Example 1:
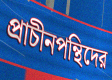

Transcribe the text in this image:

প্রাচীনপন্থিদের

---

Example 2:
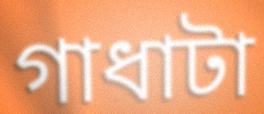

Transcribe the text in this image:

গাধাটা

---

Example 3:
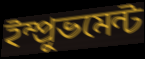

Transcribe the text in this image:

ইম্প্রুভমেন্ট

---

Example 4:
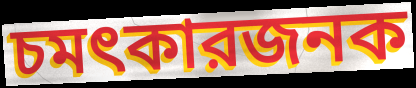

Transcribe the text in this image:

চমৎকারজনক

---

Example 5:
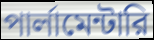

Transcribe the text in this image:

পার্লামেন্টারি